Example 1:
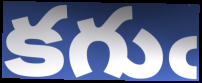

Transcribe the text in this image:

కగుఁ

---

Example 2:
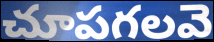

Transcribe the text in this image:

చూపగలవె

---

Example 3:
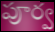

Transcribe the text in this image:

పూర్వ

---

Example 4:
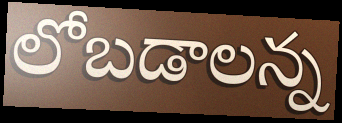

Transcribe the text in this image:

లోబడాలన్న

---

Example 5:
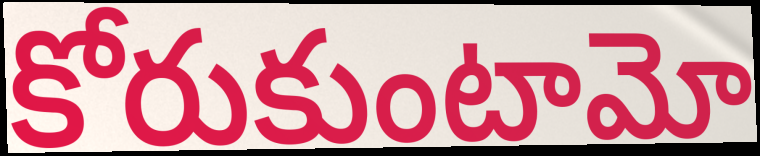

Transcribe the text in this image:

కోరుకుంటామో